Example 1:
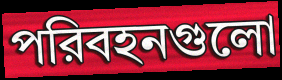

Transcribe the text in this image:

পরিবহনগুলো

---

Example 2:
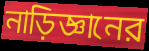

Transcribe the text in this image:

নাড়িজ্ঞানের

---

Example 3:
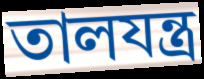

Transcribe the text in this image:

তালযন্ত্র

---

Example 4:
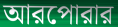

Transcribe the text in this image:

আরপোরার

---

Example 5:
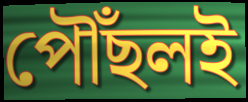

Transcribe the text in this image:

পৌঁছলই